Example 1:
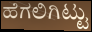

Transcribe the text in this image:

ಹೆಗಲಿಗಿಟ್ಟು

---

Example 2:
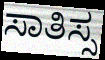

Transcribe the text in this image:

ಸಾತಿಸ್ಸ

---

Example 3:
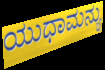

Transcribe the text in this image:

ಯುಧಾಮನ್ಯು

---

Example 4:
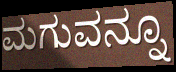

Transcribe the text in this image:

ಮಗುವನ್ನೂ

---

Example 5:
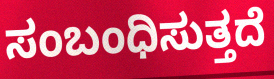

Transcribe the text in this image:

ಸಂಬಂಧಿಸುತ್ತದೆ